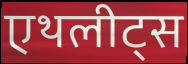
एथलीट्स